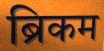
ब्रिकम